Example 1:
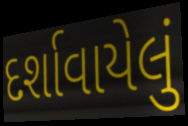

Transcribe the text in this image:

દર્શાવાયેલું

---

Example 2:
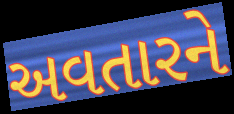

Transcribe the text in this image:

અવતારને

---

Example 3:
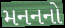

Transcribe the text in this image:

મનનનો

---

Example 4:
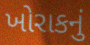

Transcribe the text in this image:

ખોરાકનું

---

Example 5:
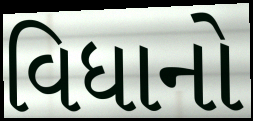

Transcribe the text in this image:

વિધાનો